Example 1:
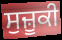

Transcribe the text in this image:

ਸੁਜ਼ੂਕੀ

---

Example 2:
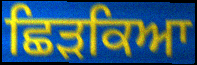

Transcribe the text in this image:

ਛਿੜਕਿਆ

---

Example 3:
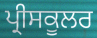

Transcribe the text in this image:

ਪ੍ਰੀਸਕੂਲਰ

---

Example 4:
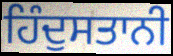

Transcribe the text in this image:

ਹਿੰਦੁਸਤਾਨੀ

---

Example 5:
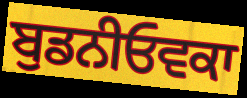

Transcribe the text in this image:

ਬੁਡਨੀਓਵਕਾ